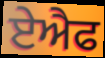
ਏਐਫ